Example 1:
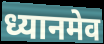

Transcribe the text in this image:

ध्यानमेव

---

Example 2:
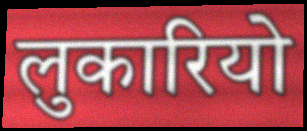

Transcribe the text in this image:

लुकारियो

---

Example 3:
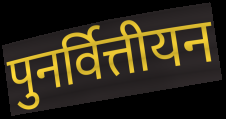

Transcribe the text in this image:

पुनर्वित्तीयन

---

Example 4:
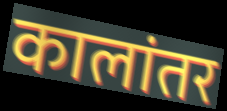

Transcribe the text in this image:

कालांतर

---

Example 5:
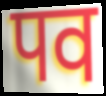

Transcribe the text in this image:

पव